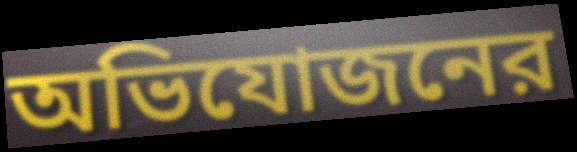
অভিযোজনের